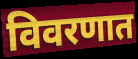
विवरणात